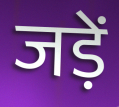
जड़ें